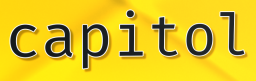
capitol